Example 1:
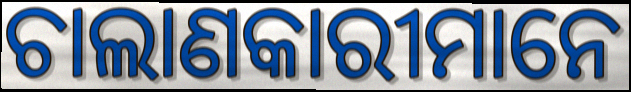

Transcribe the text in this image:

ଚାଲାଣକାରୀମାନେ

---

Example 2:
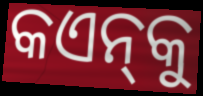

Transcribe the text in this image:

କଏନ୍‌କୁ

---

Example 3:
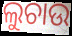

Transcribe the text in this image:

ଲୁଚାଉ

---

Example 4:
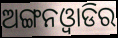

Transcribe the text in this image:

ଅଙ୍ଗନଓ୍ବାଡିର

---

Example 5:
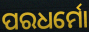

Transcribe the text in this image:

ପରଧର୍ମୋ